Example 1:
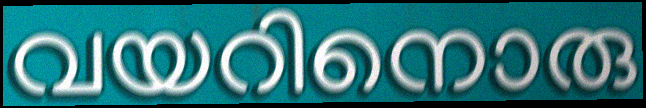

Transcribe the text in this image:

വയറിനൊരു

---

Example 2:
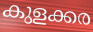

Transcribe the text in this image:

കുളക്കര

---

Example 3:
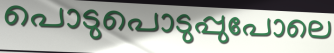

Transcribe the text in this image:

പൊടുപൊടുപ്പുപോലെ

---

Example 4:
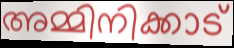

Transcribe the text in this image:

അമ്മിനിക്കാട്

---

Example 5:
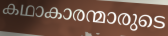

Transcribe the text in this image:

കഥാകാരന്മാരുടെ